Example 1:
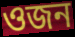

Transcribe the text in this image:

ওজন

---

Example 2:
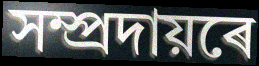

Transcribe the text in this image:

সম্প্ৰদায়ৰে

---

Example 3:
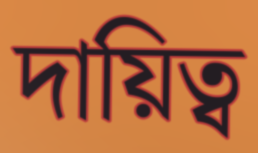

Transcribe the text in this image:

দায়িত্ব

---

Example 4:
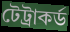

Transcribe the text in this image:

টেট্ৰাকৰ্ড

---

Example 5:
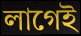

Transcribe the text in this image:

লাগেই